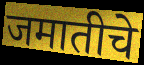
जमातीचे